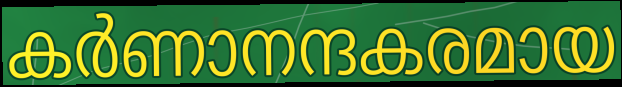
കർണാനന്ദകരമായ